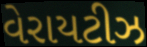
વેરાયટીઝ